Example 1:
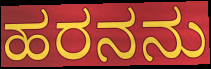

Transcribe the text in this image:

ಹರನನು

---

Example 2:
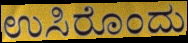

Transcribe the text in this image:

ಉಸಿರೊಂದು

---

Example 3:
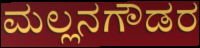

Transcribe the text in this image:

ಮಲ್ಲನಗೌಡರ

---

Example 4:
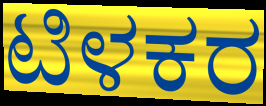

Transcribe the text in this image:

ಟಿಳಕರ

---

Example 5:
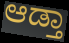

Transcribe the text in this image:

ಆಡ್ತಾ